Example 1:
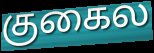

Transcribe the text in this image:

குகைல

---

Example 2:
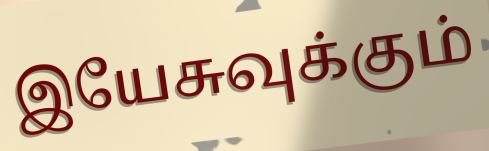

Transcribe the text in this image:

இயேசுவுக்கும்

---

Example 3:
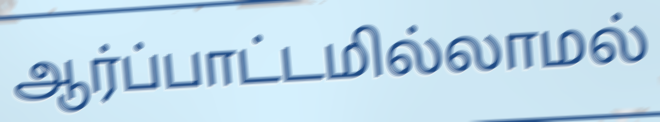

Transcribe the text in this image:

ஆர்ப்பாட்டமில்லாமல்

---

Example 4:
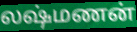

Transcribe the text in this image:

லஷ்மணன்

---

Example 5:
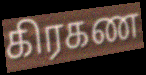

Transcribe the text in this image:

கிரகண